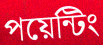
পয়েন্টিং